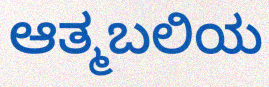
ಆತ್ಮಬಲಿಯ